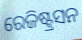
ରେଜିଷ୍ଟ୍ରସନ